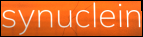
synuclein